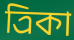
ত্রিকা